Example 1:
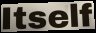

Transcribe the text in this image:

Itself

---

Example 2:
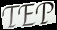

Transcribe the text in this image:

TEP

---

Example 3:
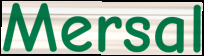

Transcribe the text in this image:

Mersal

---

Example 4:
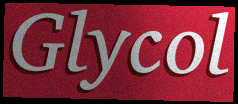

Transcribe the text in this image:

Glycol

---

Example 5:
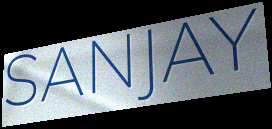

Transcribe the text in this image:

SANJAY